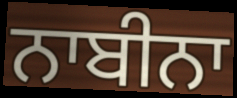
ਨਾਬੀਨਾ